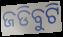
ଜଡିବୁଟି